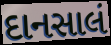
દાનસાલં